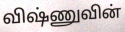
விஷ்ணுவின்